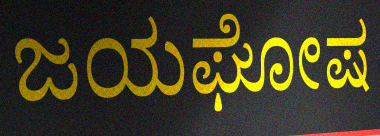
ಜಯಘೋಷ